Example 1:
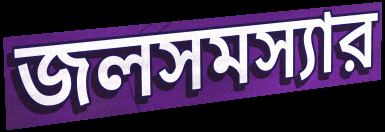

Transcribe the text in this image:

জলসমস্যার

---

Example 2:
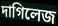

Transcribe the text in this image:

দাগিলেজ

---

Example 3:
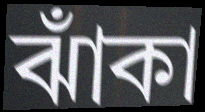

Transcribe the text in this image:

ঝাঁকা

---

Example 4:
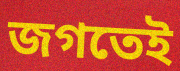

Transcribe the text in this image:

জগতেই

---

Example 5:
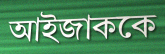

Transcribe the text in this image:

আইজাককে